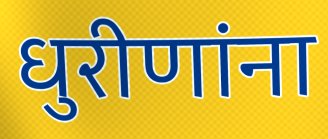
धुरीणांना